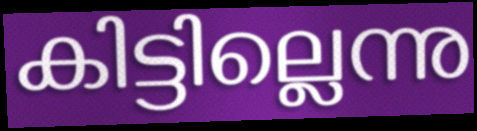
കിട്ടില്ലെന്നു